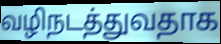
வழிநடத்துவதாக